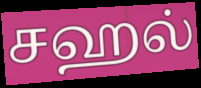
சஹல்